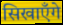
सिखाएँगे